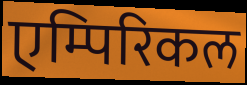
एम्पिरिकल